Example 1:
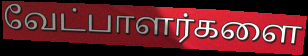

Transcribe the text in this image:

வேட்பாளர்களை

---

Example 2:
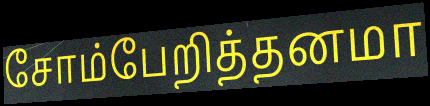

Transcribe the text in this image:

சோம்பேறித்தனமா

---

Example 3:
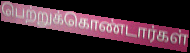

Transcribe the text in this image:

பெற்றுக்கொண்டார்கள்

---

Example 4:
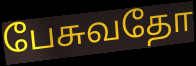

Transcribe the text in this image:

பேசுவதோ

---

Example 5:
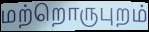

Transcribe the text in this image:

மற்றொருபுறம்